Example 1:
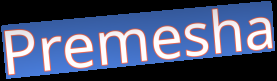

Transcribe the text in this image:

Premesha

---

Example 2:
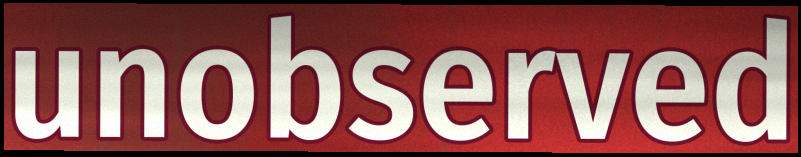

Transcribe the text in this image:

unobserved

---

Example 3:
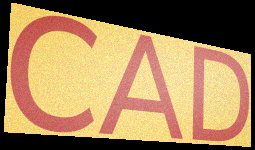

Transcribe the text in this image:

CAD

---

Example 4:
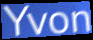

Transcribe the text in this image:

Yvon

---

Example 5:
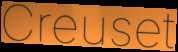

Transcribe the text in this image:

Creuset